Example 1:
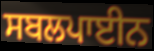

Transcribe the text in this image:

ਸਬਲਪਾਈਨ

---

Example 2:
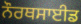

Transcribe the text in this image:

ਨੌਰਥਸਾਈਡ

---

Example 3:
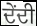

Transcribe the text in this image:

ਦੇਂਦੀ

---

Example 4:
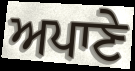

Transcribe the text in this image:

ਅਪਾਣੇ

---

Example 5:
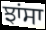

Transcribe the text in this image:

ਝਾਂਸਾ